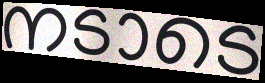
നടാടെ